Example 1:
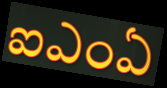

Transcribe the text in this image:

ఐఎంఏ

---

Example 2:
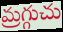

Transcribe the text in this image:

మ్రగ్గుచు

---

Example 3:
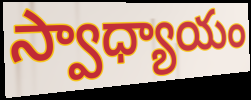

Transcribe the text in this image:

స్వాధ్యాయం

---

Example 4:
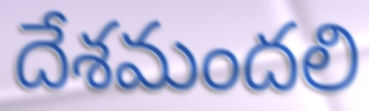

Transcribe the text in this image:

దేశమందలి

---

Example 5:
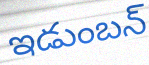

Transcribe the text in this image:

ఇడుంబన్